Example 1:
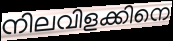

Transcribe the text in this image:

നിലവിളക്കിനെ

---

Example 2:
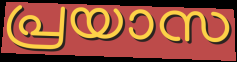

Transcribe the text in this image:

പ്രയാസ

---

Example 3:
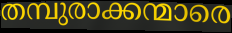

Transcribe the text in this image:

തമ്പുരാക്കന്മാരെ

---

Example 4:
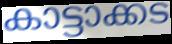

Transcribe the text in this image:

കാട്ടാക്കട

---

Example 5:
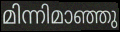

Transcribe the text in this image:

മിന്നിമാഞ്ഞു